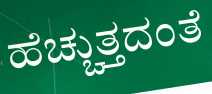
ಹೆಚ್ಚುತ್ತದಂತೆ